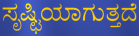
ಸೃಷ್ಟಿಯಾಗುತ್ತದೆ